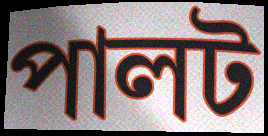
পালট